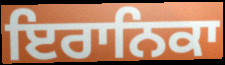
ਇਰਾਨਿਕਾ